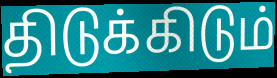
திடுக்கிடும்